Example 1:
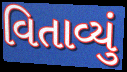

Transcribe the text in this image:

વિતાવ્યું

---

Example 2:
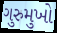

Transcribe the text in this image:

ગુરુમુખો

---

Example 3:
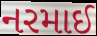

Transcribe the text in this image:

નરમાઈ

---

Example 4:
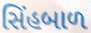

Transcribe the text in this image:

સિંહબાળ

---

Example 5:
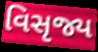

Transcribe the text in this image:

વિસૃજ્ય